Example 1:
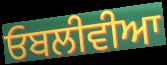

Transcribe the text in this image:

ਓਬਲੀਵੀਆ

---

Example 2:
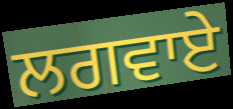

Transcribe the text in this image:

ਲਗਵਾਏ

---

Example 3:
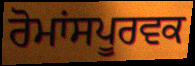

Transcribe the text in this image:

ਰੋਮਾਂਸਪੂਰਵਕ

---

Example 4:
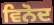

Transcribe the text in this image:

ਵਿਨੋਦ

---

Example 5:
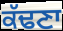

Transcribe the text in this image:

ਕੱਢਣਾ